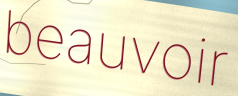
beauvoir